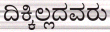
ದಿಕ್ಕಿಲ್ಲದವರು